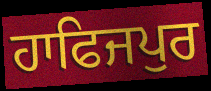
ਹਾਫਿਜਪੁਰ